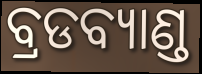
ବ୍ରଡବ୍ୟାଣ୍ଡ